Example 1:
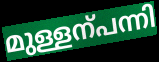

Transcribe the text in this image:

മുള്ളന്പന്നി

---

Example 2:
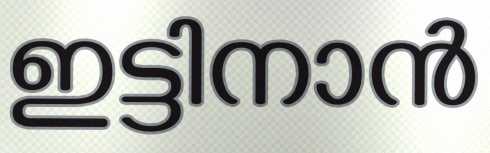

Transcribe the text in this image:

ഇട്ടിനാൻ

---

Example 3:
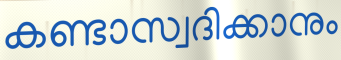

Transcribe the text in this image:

കണ്ടാസ്വദിക്കാനും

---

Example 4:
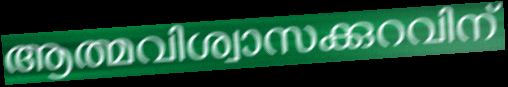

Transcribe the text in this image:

ആത്മവിശ്വാസക്കുറവിന്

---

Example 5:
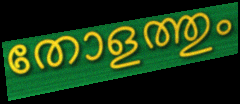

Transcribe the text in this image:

തോളത്തും